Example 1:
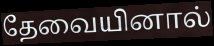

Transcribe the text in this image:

தேவையினால்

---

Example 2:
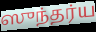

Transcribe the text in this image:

ஸுந்தர்ய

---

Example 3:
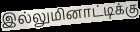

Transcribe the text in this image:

இல்லுமினாட்டிக்கு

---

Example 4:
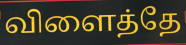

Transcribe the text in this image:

விளைத்தே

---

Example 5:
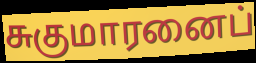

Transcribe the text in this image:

சுகுமாரனைப்